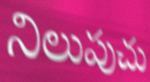
నిలుపుచు